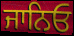
ਜਾਨਿਓ